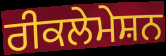
ਰੀਕਲੇਮੇਸ਼ਨ